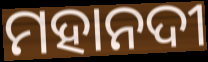
ମହାନଦୀ